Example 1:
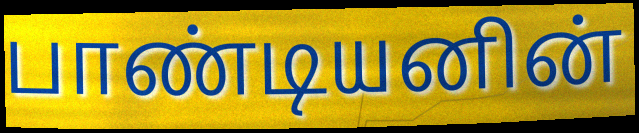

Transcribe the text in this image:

பாண்டியனின்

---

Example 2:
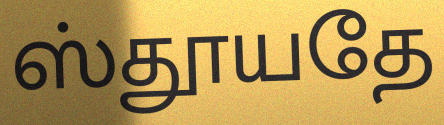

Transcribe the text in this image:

ஸ்தூயதே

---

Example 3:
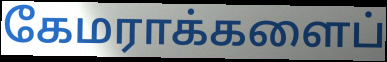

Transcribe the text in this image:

கேமராக்களைப்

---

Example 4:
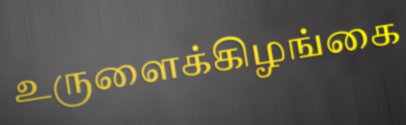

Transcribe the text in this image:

உருளைக்கிழங்கை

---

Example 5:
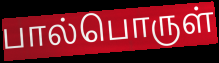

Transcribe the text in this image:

பால்பொருள்